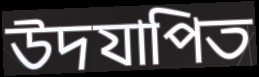
উদযাপিত